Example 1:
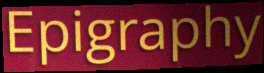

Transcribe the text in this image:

Epigraphy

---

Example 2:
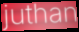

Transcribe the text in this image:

juthan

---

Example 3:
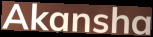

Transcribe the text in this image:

Akansha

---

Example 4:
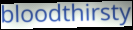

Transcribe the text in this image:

bloodthirsty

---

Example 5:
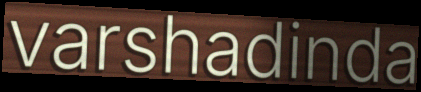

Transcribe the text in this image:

varshadinda